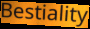
Bestiality